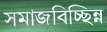
সমাজবিচ্ছিন্ন